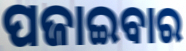
ପଜାଇବାର